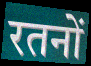
रतनों